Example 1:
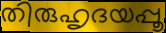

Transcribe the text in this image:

തിരുഹൃദയപ്പൂ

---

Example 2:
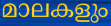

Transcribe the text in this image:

മാലകളും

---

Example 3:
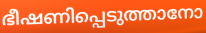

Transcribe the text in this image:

ഭീഷണിപ്പെടുത്താനോ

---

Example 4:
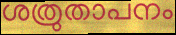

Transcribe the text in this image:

ശത്രുതാപനം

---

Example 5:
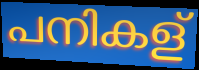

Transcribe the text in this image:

പനികള്